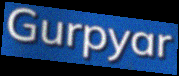
Gurpyar